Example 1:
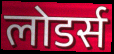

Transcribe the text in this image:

लोडर्स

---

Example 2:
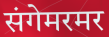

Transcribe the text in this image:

संगेमरमर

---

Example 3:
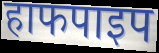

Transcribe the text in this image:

हाफपाइप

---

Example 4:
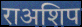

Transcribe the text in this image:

राअशिप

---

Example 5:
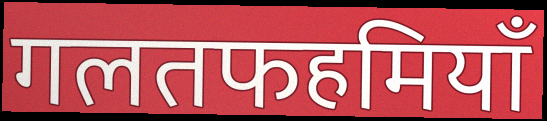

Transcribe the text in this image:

गलतफहमियाँ